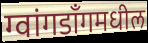
ग्वांगडाँगमधील